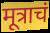
मूत्राचं